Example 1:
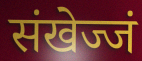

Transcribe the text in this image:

संखेज्जं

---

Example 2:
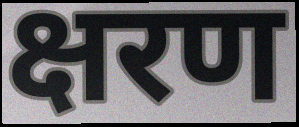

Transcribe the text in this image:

क्षरण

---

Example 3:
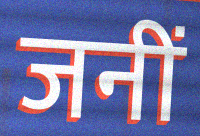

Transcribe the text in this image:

जनीं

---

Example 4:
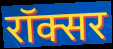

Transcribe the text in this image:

रॉक्सर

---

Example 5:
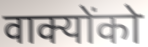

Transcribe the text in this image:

वाक्योंको